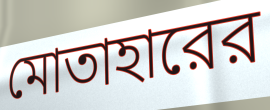
মোতাহারের